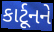
કાર્ટૂનને